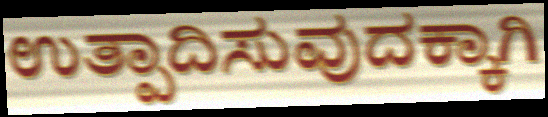
ಉತ್ಪಾದಿಸುವುದಕ್ಕಾಗಿ